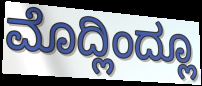
ಮೊದ್ಲಿಂದ್ಲೂ